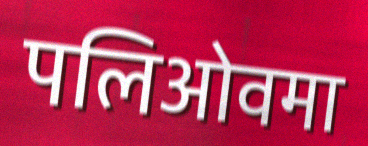
पलिओवमा